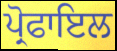
ਪ੍ਰੋਫਾਇਲ